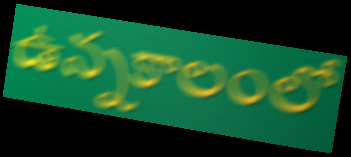
ఉన్నకాలంలో